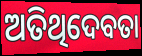
ଅତିଥିଦେବତା